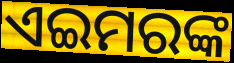
ଏଇମରଙ୍କ